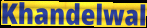
Khandelwal